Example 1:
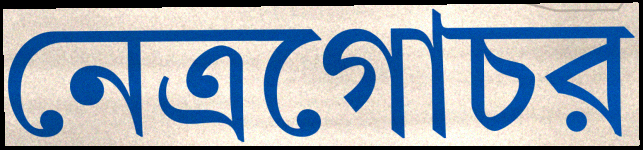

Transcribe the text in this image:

নেত্রগোচর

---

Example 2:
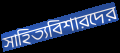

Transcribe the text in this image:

সাহিত্যবিশারদের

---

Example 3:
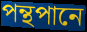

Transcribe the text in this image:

পন্থপানে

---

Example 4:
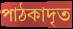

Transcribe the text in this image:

পাঠকাদৃত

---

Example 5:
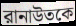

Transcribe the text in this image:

রানাউতকে